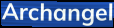
Archangel